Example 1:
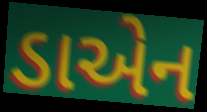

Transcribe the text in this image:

ડાએન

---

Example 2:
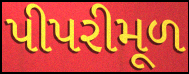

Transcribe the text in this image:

પીપરીમૂળ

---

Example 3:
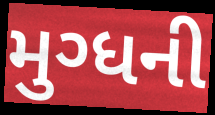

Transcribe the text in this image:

મુગ્ધની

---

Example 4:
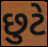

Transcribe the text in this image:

છુટે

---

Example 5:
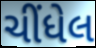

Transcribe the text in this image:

ચીંધેલ